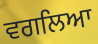
ਵਗਲਿਆ